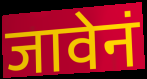
जावेनं